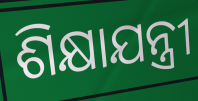
ଶିକ୍ଷାଯନ୍ତ୍ରୀ